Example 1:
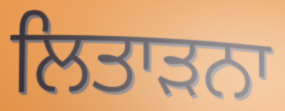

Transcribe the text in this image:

ਲਿਤਾੜਨਾ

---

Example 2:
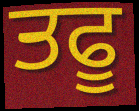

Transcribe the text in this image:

ਤਫੂ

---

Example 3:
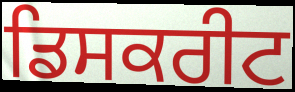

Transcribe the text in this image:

ਡਿਸਕਰੀਟ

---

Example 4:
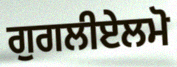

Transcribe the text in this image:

ਗੁਗਲੀਏਲਮੋ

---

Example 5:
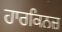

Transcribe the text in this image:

ਹਾਰਕਿਨਜ਼